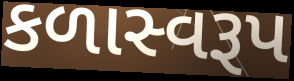
કળાસ્વરૂપ